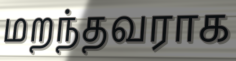
மறந்தவராக